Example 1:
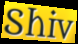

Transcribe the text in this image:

Shiv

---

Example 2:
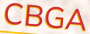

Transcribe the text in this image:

CBGA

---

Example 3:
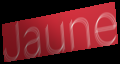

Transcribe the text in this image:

Jaune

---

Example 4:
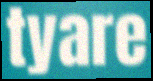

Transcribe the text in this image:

tyare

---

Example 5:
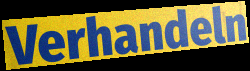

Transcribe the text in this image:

Verhandeln